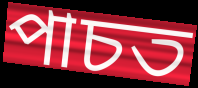
পাচত